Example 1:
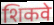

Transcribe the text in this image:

शिकवे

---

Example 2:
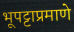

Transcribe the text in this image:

भूपट्टाप्रमाणे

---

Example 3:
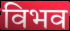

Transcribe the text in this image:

विभव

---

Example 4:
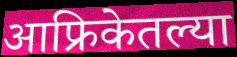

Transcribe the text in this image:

आफ्रिकेतल्या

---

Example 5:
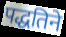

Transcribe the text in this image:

पद्धतिने